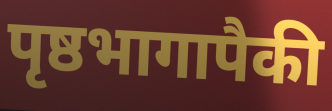
पृष्ठभागापैकी